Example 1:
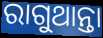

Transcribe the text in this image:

ରାଗୁଥାନ୍ତା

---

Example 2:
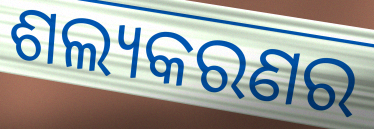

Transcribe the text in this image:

ଶଲ୍ୟକରଣର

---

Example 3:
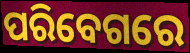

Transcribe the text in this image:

ପରିବେଗରେ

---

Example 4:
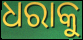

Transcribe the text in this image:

ଧରାକୁ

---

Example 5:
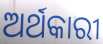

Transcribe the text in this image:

ଅର୍ଥକାରୀ